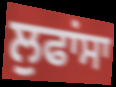
ਲੁਫਾਂਸਾ